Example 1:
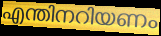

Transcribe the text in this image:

എന്തിനറിയണം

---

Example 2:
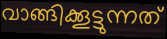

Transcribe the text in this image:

വാങ്ങിക്കൂട്ടുന്നത്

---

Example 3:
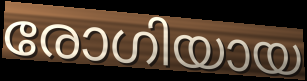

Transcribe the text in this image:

രോഗിയായ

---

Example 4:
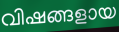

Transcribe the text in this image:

വിഷങ്ങളായ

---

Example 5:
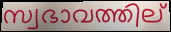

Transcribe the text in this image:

സ്വഭാവത്തില്